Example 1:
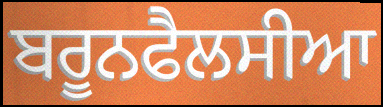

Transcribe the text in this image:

ਬਰੂਨਫੈਲਸੀਆ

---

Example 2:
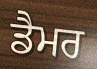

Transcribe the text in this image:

ਡੈਮਰ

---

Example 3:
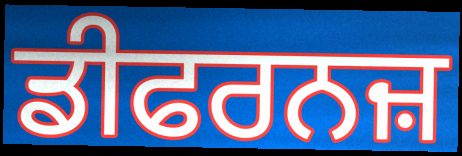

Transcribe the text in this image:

ਡੀਫਰਨਜ਼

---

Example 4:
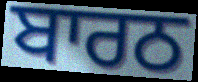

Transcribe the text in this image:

ਬਾਰਠ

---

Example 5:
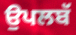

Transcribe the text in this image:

ਉਪਲਬੱ